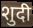
शुदी